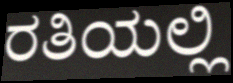
ರತಿಯಲ್ಲಿ